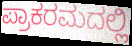
ಪ್ರಾಕರಮದಲ್ಲಿ